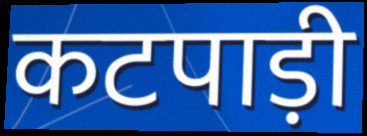
कटपाड़ी